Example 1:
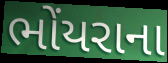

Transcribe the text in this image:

ભોંયરાના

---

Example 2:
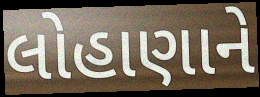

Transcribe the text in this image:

લોહાણાને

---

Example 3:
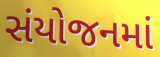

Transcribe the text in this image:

સંયોજનમાં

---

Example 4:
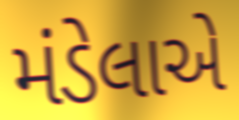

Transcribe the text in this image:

મંડેલાએ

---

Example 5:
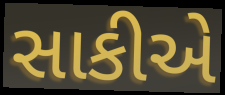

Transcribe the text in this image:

સાકીએ